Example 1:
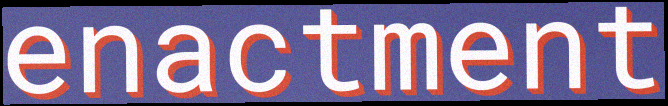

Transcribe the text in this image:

enactment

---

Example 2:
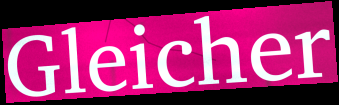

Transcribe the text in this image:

Gleicher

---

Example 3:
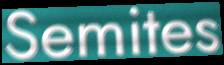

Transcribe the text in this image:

Semites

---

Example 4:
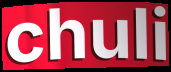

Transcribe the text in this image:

chuli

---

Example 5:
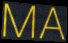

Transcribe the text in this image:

MA